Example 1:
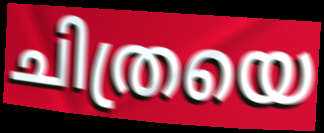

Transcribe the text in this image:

ചിത്രയെ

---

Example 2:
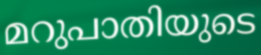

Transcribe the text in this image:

മറുപാതിയുടെ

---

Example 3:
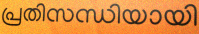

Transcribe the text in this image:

പ്രതിസന്ധിയായി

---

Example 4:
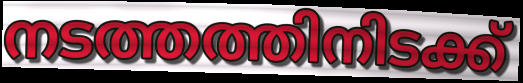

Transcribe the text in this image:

നടത്തത്തിനിടക്ക്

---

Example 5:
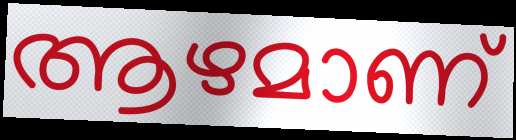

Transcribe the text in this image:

ആഴമാണ്